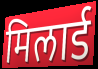
मिलार्ड